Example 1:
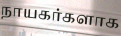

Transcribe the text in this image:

நாயகர்களாக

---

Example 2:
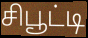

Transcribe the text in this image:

சிபூட்டி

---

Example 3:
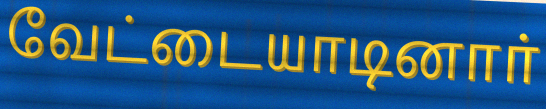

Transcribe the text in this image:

வேட்டையாடினார்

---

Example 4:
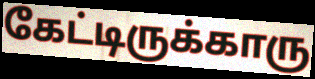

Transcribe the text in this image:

கேட்டிருக்காரு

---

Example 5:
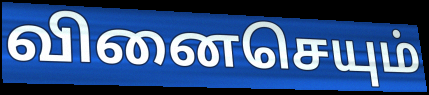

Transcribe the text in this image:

வினைசெயும்